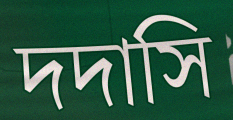
দদাসি